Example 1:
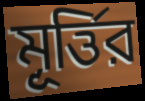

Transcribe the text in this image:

মূর্ত্তির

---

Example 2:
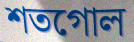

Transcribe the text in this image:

শতগোল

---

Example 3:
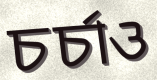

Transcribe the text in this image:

চর্চাও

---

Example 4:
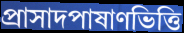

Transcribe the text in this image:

প্রাসাদপাষাণভিত্তি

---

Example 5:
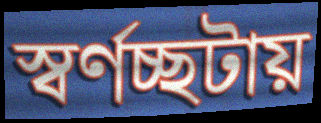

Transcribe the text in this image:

স্বর্ণচ্ছটায়